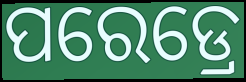
ପରେଡ୍ରେ